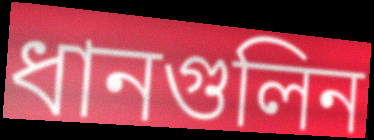
ধানগুলিন